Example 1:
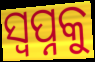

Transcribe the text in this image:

ସ୍ଵପ୍ନକୁ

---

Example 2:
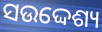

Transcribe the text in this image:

ସଉଦ୍ଦେଶ୍ୟ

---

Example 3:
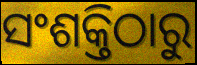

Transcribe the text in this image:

ସଂଶକ୍ତିଠାରୁ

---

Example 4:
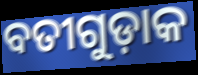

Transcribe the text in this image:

ବତୀଗୁଡ଼ାକ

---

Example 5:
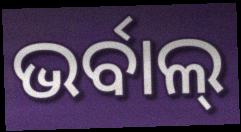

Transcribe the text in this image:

ଭର୍ବାଲ୍